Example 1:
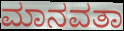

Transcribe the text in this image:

ಮಾನವತಾ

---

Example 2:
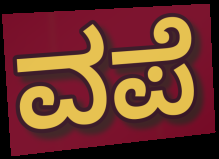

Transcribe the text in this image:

ವಪೆ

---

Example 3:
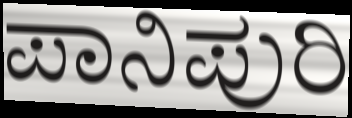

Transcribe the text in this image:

ಪಾನಿಪುರಿ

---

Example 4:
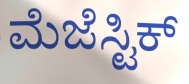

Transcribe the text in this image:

ಮೆಜೆಸ್ಟಿಕ್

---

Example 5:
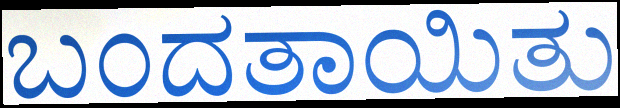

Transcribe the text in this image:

ಬಂದತಾಯಿತು